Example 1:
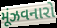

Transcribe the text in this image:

મૂંઝવનારો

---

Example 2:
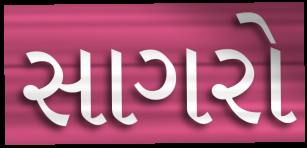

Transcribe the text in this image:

સાગરો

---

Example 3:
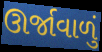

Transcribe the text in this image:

ઊર્જાવાળું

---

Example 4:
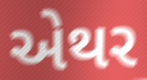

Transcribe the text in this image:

એથર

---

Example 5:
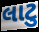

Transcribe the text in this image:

લાટુ